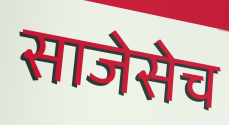
साजेसेच